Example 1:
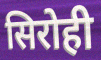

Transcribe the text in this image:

सिरोही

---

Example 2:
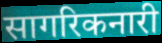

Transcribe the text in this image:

सागरिकनारी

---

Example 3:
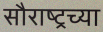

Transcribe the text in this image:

सौराष्ट्रच्या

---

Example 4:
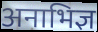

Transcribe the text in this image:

अनाभिज्ञ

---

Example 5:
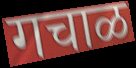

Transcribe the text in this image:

गचाळ